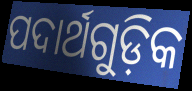
ପଦାର୍ଥଗୁଡ଼ିକ